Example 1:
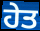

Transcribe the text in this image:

ਹੇਤ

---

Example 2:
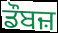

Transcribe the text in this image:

ਡੌਬਜ਼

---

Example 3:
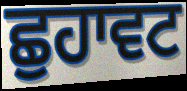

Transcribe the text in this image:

ਛੁਹਾਵਟ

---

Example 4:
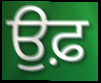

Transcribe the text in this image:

ਉਫ਼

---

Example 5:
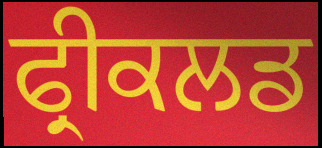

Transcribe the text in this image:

ਫ੍ਰੀਕਲਡ